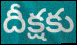
దీక్షకు